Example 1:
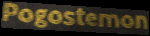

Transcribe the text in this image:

Pogostemon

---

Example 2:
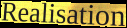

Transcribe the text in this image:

Realisation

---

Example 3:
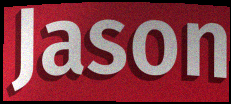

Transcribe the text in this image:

Jason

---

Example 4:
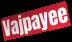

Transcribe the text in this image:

Vajpayee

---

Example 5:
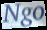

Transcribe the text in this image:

Ngo